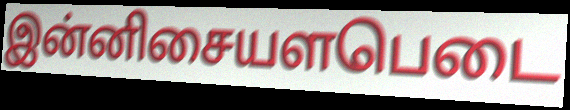
இன்னிசையளபெடை